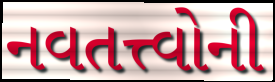
નવતત્ત્વોની